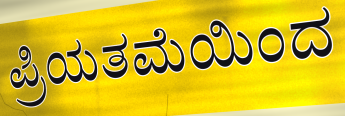
ಪ್ರಿಯತಮೆಯಿಂದ